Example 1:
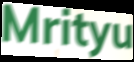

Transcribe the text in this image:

Mrityu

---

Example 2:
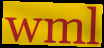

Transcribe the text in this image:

wml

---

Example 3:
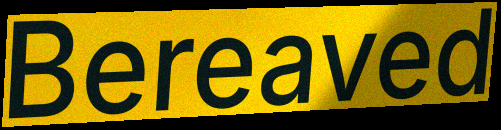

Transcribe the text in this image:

Bereaved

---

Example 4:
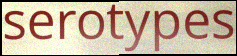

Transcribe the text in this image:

serotypes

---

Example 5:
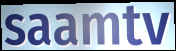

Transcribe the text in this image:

saamtv